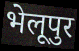
भेलूपुर